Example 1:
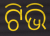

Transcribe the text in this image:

ଟିଭି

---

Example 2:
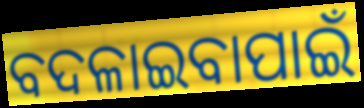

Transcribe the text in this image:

ବଦଳାଇବାପାଇଁ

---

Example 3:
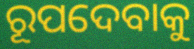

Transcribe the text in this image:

ରୂପଦେବାକୁ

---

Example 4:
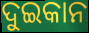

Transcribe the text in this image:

ଦୁଇକାନ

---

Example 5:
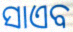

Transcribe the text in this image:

ସାଏବ